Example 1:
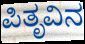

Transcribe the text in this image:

ಪಿತೃವಿನ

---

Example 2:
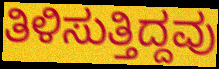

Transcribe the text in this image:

ತಿಳಿಸುತ್ತಿದ್ದವು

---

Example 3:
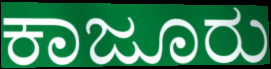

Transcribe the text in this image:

ಕಾಜೂರು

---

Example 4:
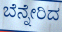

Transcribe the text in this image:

ಬೆನ್ನೇರಿದ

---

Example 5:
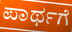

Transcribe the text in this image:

ಪಾರ್ಥಗೆ